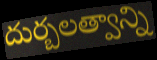
దుర్బలత్వాన్ని